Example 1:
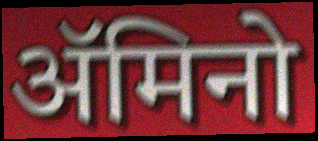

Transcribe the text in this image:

ॲमिनो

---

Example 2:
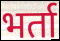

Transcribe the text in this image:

भर्ता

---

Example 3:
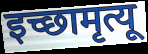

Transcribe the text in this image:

इच्छामृत्यू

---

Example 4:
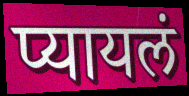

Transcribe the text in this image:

प्यायलं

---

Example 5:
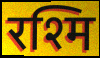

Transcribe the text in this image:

रश्मि